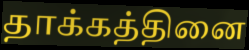
தாக்கத்தினை